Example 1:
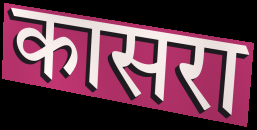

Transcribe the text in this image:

कासरा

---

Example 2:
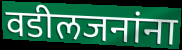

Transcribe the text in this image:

वडीलजनांना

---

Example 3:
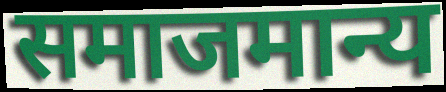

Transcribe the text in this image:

समाजमान्य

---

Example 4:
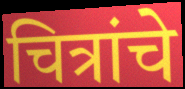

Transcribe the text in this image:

चित्रांचे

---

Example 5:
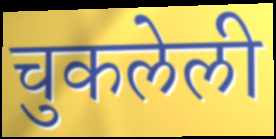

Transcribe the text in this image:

चुकलेली